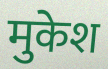
मुकेश